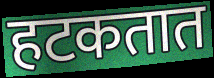
हटकतात